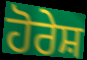
ਹੋਰੇਸ਼